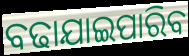
ବଢାଯାଇପାରିବ